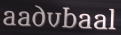
aadubaal